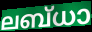
ലബ്ധാ